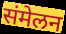
संमेलन